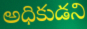
అధికుడని